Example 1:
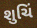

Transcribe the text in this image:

શુચિં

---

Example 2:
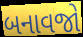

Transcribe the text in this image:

બનાવજો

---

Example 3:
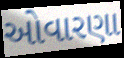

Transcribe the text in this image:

ઓવારણા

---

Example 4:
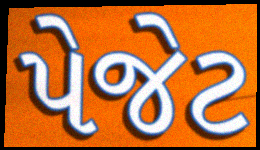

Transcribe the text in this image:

પેજેટ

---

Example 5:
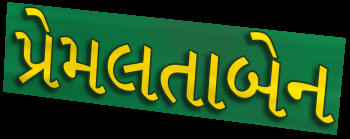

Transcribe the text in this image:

પ્રેમલતાબેન